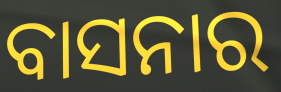
ବାସନାର